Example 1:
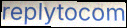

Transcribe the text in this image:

replytocom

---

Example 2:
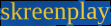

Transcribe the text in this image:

skreenplay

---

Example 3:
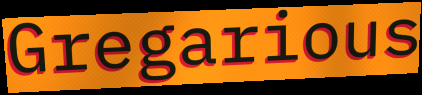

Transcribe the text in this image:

Gregarious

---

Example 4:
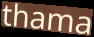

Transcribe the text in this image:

thama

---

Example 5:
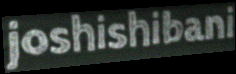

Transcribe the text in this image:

joshishibani